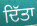
ਦਿੱਤਾ